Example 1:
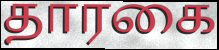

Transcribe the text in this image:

தாரகை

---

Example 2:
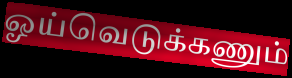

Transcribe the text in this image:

ஓய்வெடுக்கணும்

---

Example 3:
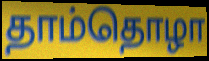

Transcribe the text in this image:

தாம்தொழா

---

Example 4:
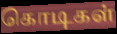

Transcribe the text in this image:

கொடிகள்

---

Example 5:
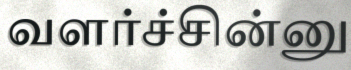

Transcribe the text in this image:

வளர்ச்சின்னு